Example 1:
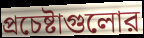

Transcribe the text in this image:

প্রচেষ্টাগুলোর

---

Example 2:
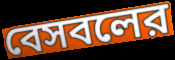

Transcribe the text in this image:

বেসবলের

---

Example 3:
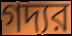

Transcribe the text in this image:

গদ্যর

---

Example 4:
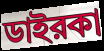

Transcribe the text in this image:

ডাইরকা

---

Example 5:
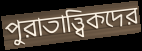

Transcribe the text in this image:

পুরাতাত্ত্বিকদের